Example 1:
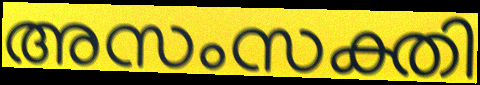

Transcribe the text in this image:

അസംസക്തി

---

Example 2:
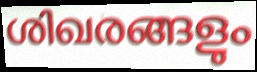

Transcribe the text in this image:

ശിഖരങ്ങളും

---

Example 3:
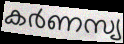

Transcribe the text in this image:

കർണസ്യ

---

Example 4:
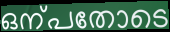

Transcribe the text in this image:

ഒന്പതോടെ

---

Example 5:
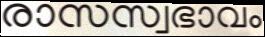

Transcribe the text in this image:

രാസസ്വഭാവം